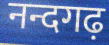
नन्दगढ़